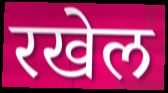
रखेल